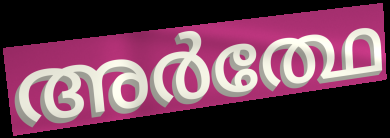
അർത്ഥേ